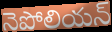
నెపోలియన్